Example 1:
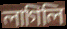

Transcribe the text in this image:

লাগিলি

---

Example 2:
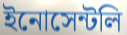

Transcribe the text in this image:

ইনোসেন্টলি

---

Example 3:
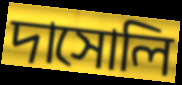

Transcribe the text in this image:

দাসোলি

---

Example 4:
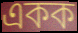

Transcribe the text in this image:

একক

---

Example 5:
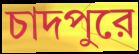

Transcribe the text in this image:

চাদপুরে